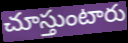
చూస్తుంటారు